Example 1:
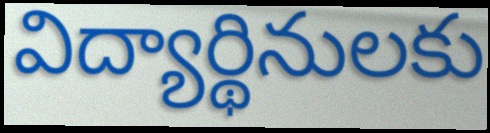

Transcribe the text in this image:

విద్యార్థినులకు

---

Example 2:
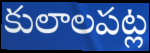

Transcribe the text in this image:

కులాలపట్ల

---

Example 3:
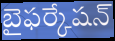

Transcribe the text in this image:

బైఫర్కేషన్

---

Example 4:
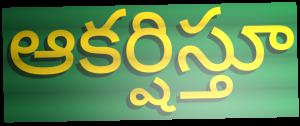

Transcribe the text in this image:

ఆకర్షిస్తూ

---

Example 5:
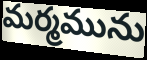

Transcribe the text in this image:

మర్మమును